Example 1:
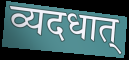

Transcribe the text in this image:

व्यदधात्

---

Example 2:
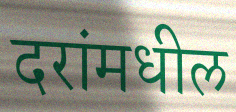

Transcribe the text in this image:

दरांमधील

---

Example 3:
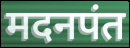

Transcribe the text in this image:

मदनपंत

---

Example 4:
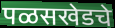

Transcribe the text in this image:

पळसखेडचे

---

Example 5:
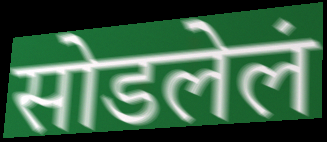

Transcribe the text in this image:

सोडलेलं